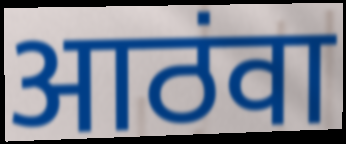
आठंवा